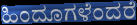
ಹಿಂದೂಗಳೆಂದರೆ